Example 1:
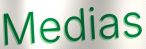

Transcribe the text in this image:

Medias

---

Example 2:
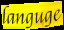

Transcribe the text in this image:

languge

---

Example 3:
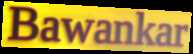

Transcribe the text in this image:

Bawankar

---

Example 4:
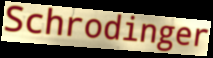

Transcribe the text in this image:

Schrodinger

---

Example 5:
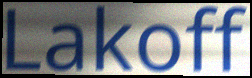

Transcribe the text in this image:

Lakoff